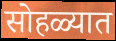
सोहळ्यात